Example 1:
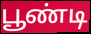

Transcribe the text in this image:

பூண்டி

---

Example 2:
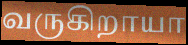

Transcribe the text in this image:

வருகிறாயா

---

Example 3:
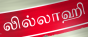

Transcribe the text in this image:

லில்லாஹி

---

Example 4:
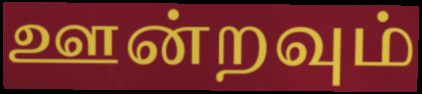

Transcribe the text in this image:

ஊன்றவும்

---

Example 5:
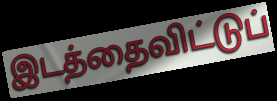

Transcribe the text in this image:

இடத்தைவிட்டுப்